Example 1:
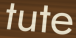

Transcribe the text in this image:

tute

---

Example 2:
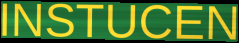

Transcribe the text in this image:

INSTUCEN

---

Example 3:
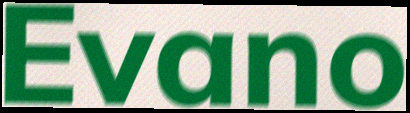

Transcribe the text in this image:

Evano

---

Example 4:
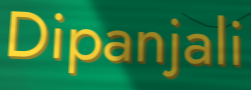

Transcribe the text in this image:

Dipanjali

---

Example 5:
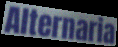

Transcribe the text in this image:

Alternaria